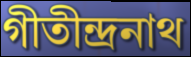
গীতীন্দ্রনাথ